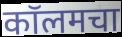
कॉलमचा